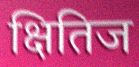
क्षितिज